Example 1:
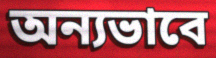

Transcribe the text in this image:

অন্যভাবে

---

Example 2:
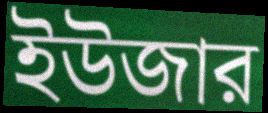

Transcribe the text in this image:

ইউজার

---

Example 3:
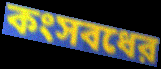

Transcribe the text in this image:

কংসবধের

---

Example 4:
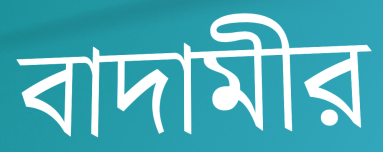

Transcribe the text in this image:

বাদামীর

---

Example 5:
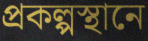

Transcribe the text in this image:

প্রকল্পস্থানে